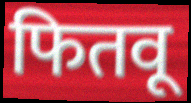
फितवू